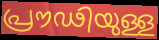
പ്രൗഢിയുള്ള